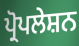
ਪ੍ਰੋਪਲੇਸ਼ਨ